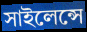
সাইলেন্সে